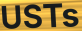
USTs